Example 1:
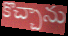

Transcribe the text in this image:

కొచ్చాను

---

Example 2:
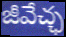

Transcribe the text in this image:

జీవేచ్ఛ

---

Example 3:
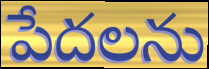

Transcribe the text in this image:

పేదలను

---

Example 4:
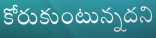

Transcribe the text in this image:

కోరుకుంటున్నదని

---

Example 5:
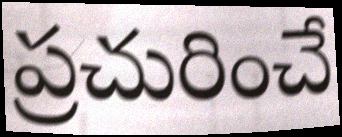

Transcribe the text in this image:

ప్రచురించే